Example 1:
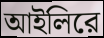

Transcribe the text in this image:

আইলিরে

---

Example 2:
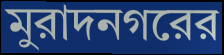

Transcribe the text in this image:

মুরাদনগরের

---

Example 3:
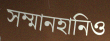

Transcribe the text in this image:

সম্মানহানিও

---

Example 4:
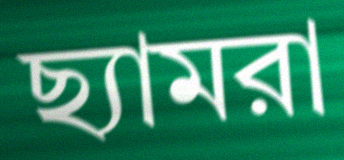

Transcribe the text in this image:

ছ্যামরা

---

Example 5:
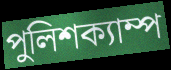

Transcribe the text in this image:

পুলিশক্যাম্প